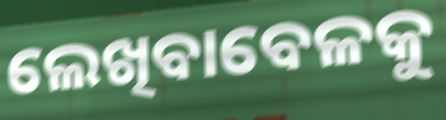
ଲେଖିବାବେଳକୁ